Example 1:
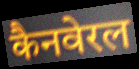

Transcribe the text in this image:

कैनवेरल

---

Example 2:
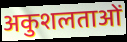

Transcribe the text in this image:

अकुशलताओं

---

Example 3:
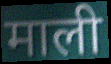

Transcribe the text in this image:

माली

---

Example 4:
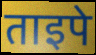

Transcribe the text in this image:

ताइपे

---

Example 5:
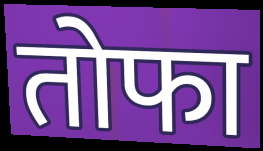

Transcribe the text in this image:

तोफा